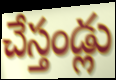
చేస్తండ్లు